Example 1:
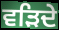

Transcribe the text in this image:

ਵੜਿਦੇ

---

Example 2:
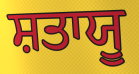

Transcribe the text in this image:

ਸ਼ਤਾਯੂ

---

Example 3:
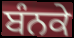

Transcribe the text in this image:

ਬੰਨਕੇ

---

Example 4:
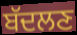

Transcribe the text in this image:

ਬੱਦਲਣ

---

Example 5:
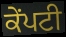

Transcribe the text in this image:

ਕੇਂਪਟੀ